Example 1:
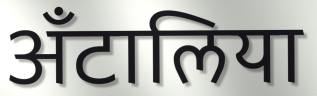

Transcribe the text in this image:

अँटालिया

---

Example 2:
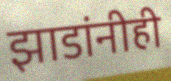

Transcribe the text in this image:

झाडांनीही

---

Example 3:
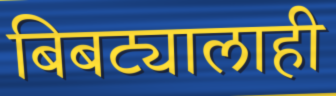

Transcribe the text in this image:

बिबट्यालाही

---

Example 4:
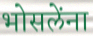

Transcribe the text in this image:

भोसलेंना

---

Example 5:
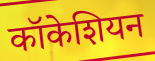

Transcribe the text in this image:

कॉकेशियन